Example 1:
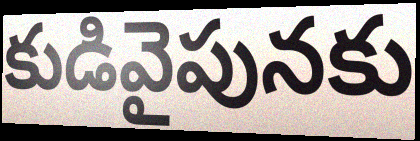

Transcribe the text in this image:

కుడివైపునకు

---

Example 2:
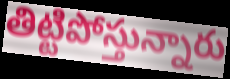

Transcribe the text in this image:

తిట్టిపోస్తున్నారు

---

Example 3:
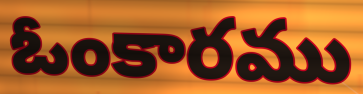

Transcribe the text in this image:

ఓంకారము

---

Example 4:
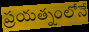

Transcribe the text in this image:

ప్రయత్నంలోనే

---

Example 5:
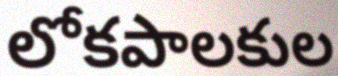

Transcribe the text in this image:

లోకపాలకుల